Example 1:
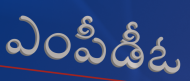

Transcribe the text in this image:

ఎంపీడీఓ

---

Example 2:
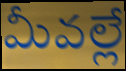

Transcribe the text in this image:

మీవల్లే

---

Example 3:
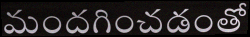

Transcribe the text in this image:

మందగించడంతో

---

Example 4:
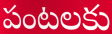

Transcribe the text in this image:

పంటలకు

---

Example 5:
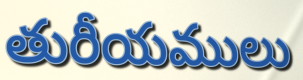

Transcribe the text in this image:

తురీయములు